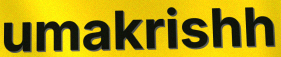
umakrishh